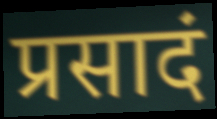
प्रसादं